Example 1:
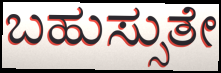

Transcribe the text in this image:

ಬಹುಸ್ಸುತೇ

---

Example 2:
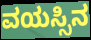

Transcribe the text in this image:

ವಯಸ್ಸಿನ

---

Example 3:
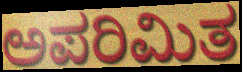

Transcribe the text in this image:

ಅಪರಿಮಿತ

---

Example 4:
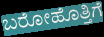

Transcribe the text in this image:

ಬರೋಹೊತ್ತಿಗೆ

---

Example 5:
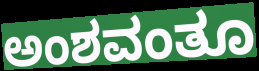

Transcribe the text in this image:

ಅಂಶವಂತೂ